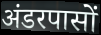
अंडरपासों